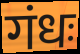
गंधः